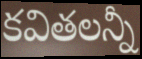
కవితలన్నీ